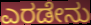
ಎರಡೇನು